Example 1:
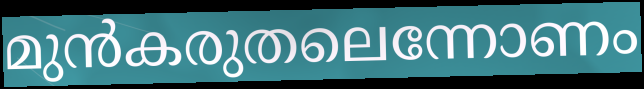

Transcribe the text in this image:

മുൻകരുതലെന്നോണം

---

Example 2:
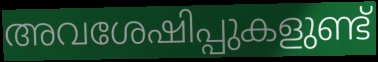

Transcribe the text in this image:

അവശേഷിപ്പുകളുണ്ട്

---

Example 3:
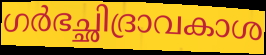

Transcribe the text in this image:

ഗർഭച്ഛിദ്രാവകാശ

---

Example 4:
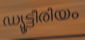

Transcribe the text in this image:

ഡ്യൂട്ടീരിയം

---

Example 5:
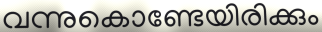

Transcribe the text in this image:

വന്നുകൊണ്ടേയിരിക്കും